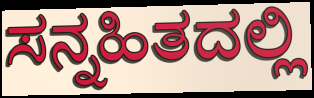
ಸನ್ನಹಿತದಲ್ಲಿ